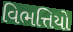
વિભત્તિયો